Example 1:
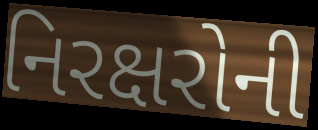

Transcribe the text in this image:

નિરક્ષરોની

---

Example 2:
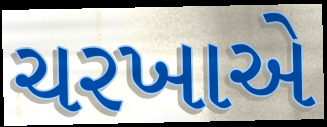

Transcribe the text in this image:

ચરખાએ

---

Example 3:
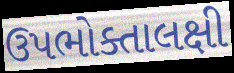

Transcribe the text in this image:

ઉપભોક્તાલક્ષી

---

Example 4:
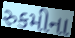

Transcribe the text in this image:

રુકમીના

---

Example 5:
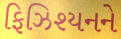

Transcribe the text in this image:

ફિઝિશ્યનને